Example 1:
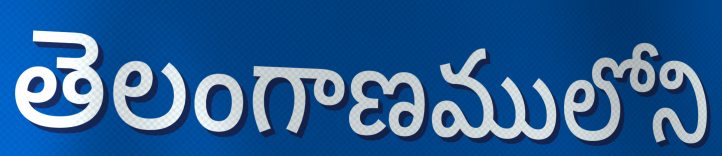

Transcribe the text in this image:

తెలంగాణములోని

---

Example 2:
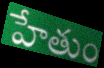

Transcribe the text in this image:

హేతుం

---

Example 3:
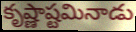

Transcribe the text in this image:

కృష్ణాష్టమినాడు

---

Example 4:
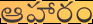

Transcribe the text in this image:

ఆహారం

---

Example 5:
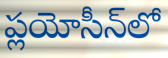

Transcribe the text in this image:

ప్లయోసీన్‌లో